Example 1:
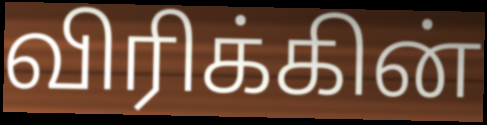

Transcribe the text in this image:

விரிக்கின்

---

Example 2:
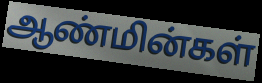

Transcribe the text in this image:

ஆண்மின்கள்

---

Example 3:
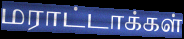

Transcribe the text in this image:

மராட்டாக்கள்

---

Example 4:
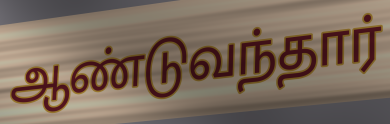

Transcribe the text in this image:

ஆண்டுவந்தார்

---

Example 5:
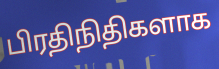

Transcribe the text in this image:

பிரதிநிதிகளாக